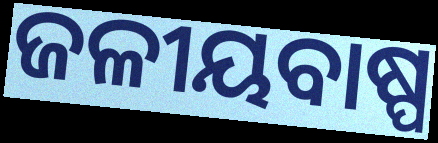
ଜଳୀୟବାଷ୍ପ